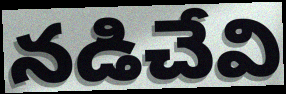
నడిచేవి